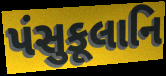
પંસુકૂલાનિ